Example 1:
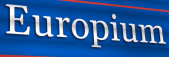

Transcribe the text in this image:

Europium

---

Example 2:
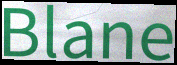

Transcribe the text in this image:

Blane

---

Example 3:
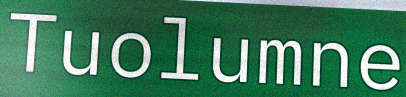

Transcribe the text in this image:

Tuolumne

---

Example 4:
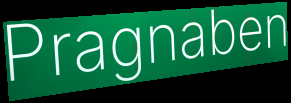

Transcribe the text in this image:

Pragnaben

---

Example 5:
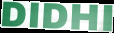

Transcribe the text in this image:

DIDHI